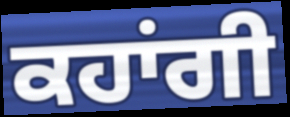
ਕਹਾਂਗੀ